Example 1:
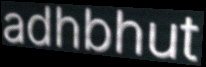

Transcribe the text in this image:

adhbhut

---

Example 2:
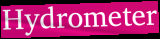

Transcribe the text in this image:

Hydrometer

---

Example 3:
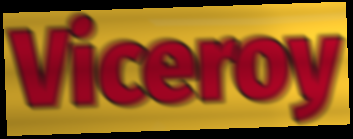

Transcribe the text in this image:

Viceroy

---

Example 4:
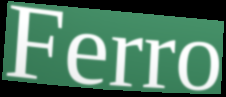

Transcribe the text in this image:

Ferro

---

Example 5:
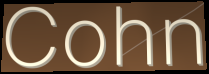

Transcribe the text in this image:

Cohn